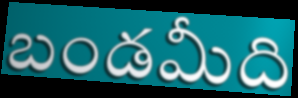
బండమీది